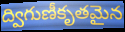
ద్విగుణీకృతమైన